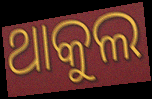
ଥାକୁଲ